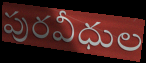
పురవీధుల